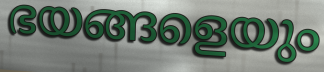
ഭയങ്ങളെയും